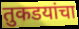
तुकडयांचा